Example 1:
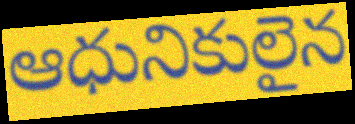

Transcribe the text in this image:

ఆధునికులైన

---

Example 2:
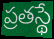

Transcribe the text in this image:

ప్రతస్థే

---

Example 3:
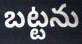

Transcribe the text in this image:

బట్టను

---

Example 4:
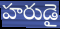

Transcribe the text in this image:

హరుడై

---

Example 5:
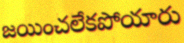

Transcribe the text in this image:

జయించలేకపోయారు